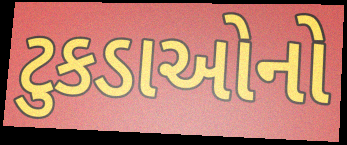
ટુકડાઓનો